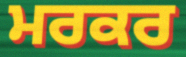
ਮਰਕਰ